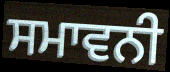
ਸਮਾਵਨੀ